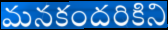
మనకందరికిని